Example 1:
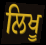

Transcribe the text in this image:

ਲਿਖੂ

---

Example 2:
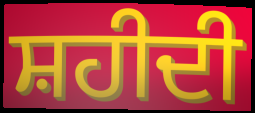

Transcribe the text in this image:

ਸ਼ਹੀਦੀ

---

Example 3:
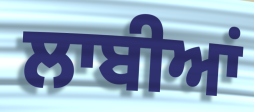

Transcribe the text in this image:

ਲਾਬੀਆਂ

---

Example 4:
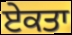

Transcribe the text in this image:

ਏਕਤਾ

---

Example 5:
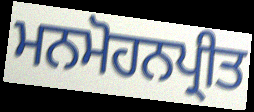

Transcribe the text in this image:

ਮਨਮੋਹਨਪ੍ਰੀਤ